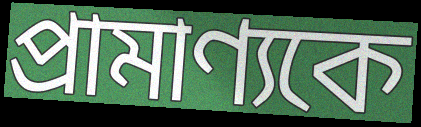
প্রামাণ্যকে